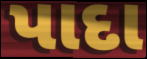
પાદા